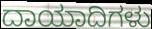
ದಾಯಾದಿಗಳು